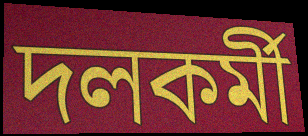
দলকর্মী